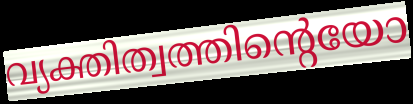
വ്യക്തിത്വത്തിന്റെയോ